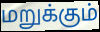
மறுக்கும்